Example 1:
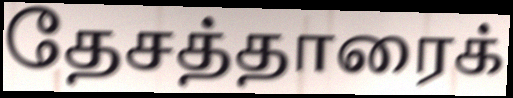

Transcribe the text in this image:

தேசத்தாரைக்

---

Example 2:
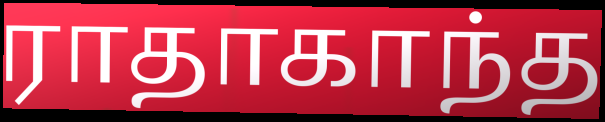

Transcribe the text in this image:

ராதாகாந்த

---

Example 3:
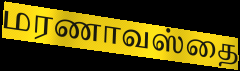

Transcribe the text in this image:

மரணாவஸ்தை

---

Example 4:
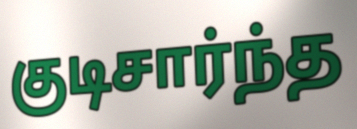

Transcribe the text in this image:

குடிசார்ந்த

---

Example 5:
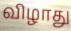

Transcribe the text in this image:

விழாது